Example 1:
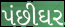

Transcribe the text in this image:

પંછીઘર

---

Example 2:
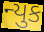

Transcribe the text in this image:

ન્યુક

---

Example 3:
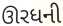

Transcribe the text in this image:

ઊરધની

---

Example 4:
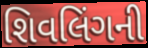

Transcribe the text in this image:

શિવલિંગની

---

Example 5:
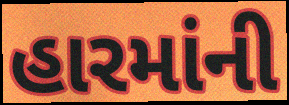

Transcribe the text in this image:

હારમાંની